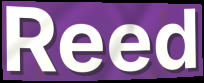
Reed